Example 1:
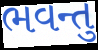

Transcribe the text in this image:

ભવન્તુ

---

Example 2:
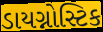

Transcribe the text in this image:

ડાયગ્નોસ્ટિક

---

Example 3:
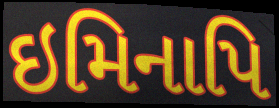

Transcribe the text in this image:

ઇમિનાપિ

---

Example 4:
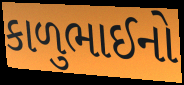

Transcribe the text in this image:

કાળુભાઈનો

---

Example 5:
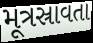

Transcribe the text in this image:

મૂત્રસ્રાવતા